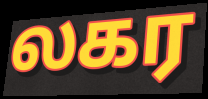
லகர